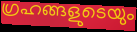
ഗ്രഹങ്ങളുടെയും